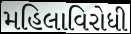
મહિલાવિરોધી